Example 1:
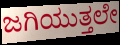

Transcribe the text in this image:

ಜಗಿಯುತ್ತಲೇ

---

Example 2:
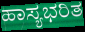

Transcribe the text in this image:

ಹಾಸ್ಯಭರಿತ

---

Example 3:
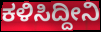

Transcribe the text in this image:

ಕಳಿಸಿದ್ದೀನಿ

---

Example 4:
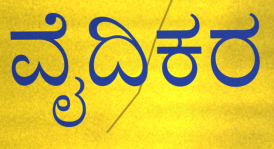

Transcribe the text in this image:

ವೈದಿಕರ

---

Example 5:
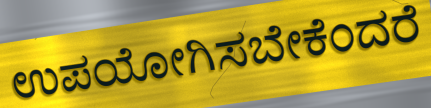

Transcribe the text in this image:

ಉಪಯೋಗಿಸಬೇಕೆಂದರೆ